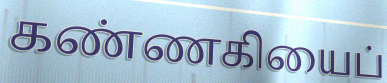
கண்ணகியைப்